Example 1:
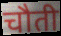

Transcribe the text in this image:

चौती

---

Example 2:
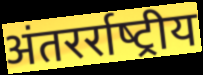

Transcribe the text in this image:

अंतरर्राष्ट्रीय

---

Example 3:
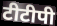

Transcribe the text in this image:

टीटीपी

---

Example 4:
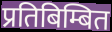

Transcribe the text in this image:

प्रतिबिम्बित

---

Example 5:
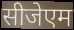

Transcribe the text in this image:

सीजेएम